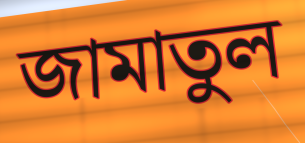
জামাতুল